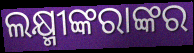
ଲକ୍ଷ୍ମୀଙ୍କରାଙ୍କର